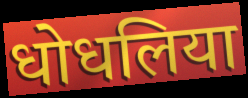
धोधलिया